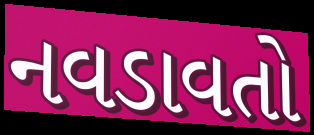
નવડાવતો